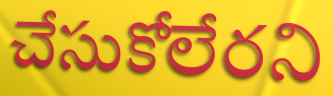
చేసుకోలేరని